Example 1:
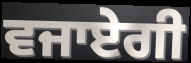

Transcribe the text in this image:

ਵਜਾਏਗੀ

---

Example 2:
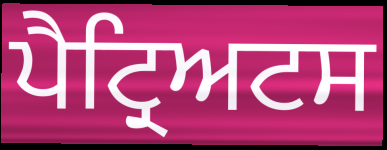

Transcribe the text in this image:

ਪੈਟ੍ਰਿਅਟਸ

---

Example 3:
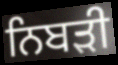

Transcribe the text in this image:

ਨਿਬੜੀ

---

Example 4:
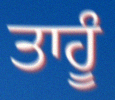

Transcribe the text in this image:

ਤਾਹੂੰ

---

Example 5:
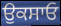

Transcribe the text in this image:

ਉਕਸਾਓ